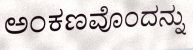
ಅಂಕಣವೊಂದನ್ನು